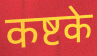
कष्टके